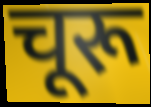
चूरू